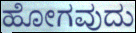
ಹೋಗವುದು